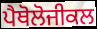
ਪੈਥੋਲੋਜੀਕਲ